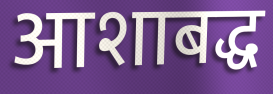
आशाबद्ध